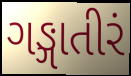
ગઙ્ગાતીરં